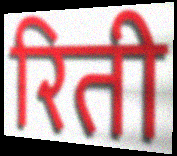
रिती